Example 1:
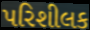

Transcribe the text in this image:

પરિશીલક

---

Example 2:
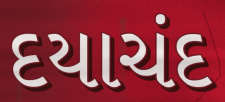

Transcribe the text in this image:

દયાચંદ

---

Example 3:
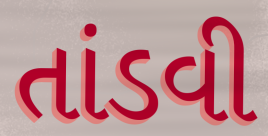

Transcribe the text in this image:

તાંડવી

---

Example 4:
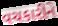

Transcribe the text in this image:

વચકારીને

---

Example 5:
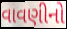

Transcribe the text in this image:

વાવણીનો